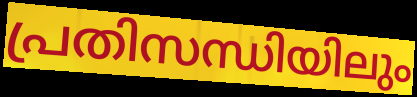
പ്രതിസന്ധിയിലും